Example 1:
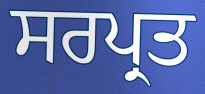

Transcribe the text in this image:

ਸਰਪ੍ਰਤ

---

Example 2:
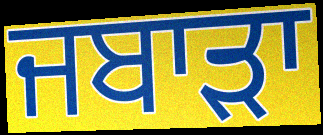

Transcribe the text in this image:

ਜਬਾੜਾ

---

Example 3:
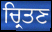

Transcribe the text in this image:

ਚ੍ਰਿਤਣ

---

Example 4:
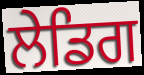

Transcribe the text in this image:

ਲੇਡਿਗ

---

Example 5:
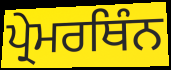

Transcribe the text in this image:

ਪ੍ਰੇਮਰਥਿੰਨ